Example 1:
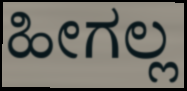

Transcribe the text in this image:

ಹೀಗಲ್ಲ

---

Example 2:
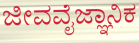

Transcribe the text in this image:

ಜೀವವೈಜ್ಞಾನಿಕ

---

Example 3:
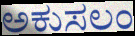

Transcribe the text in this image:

ಅಕುಸಲಂ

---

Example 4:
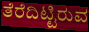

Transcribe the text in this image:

ತೆರೆದಿಟ್ಟಿರುವ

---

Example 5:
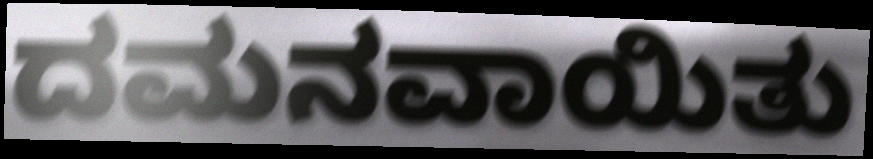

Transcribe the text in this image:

ದಮನವಾಯಿತು